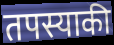
तपस्याकी